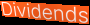
Dividends